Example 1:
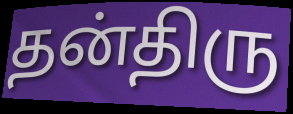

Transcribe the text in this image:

தன்திரு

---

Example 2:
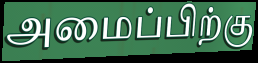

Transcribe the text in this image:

அமைப்பிற்கு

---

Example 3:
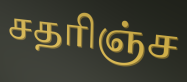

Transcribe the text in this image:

சதரிஞ்ச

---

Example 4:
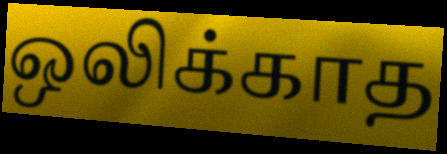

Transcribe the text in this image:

ஒலிக்காத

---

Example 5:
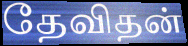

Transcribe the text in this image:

தேவிதன்